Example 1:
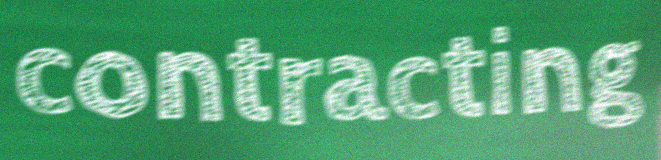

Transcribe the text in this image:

contracting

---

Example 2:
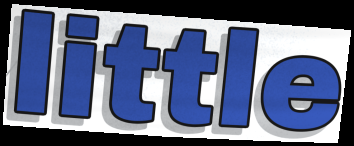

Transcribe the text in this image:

little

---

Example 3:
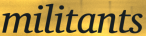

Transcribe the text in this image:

militants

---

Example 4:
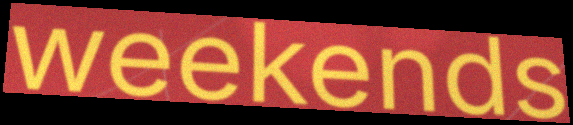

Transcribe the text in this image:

weekends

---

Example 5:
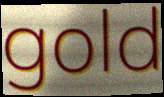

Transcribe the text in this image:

gold